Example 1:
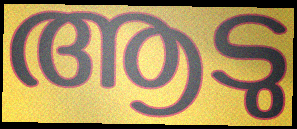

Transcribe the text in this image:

ആടു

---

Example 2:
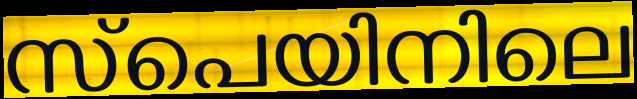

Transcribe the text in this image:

സ്‌പെയിനിലെ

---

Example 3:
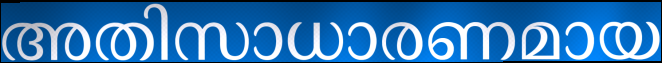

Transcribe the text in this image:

അതിസാധാരണമായ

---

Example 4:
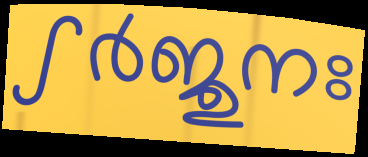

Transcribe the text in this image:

ഽർജുനഃ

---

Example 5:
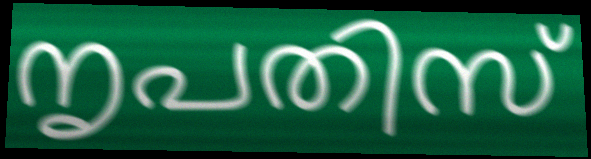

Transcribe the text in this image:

നൃപതിസ്